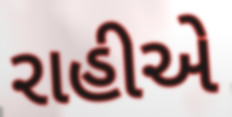
રાહીએ